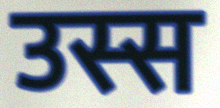
उस्स